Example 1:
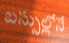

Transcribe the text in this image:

బస్సుల్లోనే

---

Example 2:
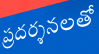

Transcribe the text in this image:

ప్రదర్శనలతో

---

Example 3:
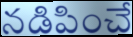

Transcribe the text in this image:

నడిపించే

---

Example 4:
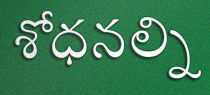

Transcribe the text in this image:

శోధనల్ని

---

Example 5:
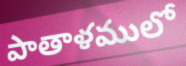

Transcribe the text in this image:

పాతాళములో